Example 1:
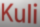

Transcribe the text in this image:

Kuli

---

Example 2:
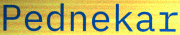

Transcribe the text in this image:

Pednekar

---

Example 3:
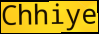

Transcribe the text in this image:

Chhiye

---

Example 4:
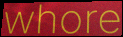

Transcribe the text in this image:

whore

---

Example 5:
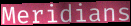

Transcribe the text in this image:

Meridians